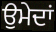
ਉਮੇਦਾਂ